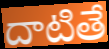
దాటితే